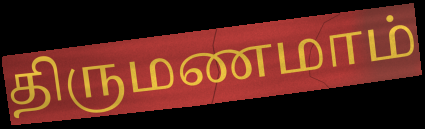
திருமணமாம்